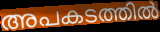
അപകടത്തിൽ